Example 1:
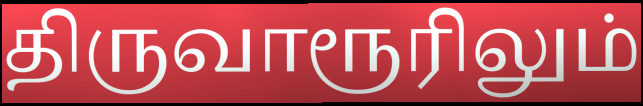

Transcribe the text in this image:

திருவாரூரிலும்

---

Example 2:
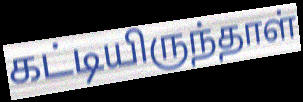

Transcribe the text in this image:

கட்டியிருந்தாள்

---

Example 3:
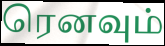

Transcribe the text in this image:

ரெனவும்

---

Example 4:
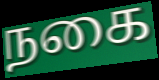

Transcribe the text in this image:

நகை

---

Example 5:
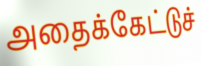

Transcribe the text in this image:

அதைக்கேட்டுச்